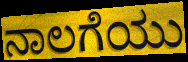
ನಾಲಗೆಯು